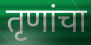
तृणांचा